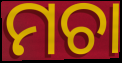
ମଚା